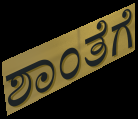
ಶಾಂತೆಗೆ